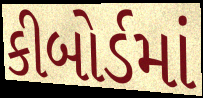
કીબોર્ડમાં